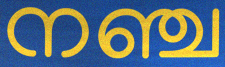
നഞ്ച